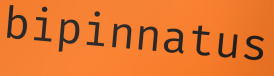
bipinnatus